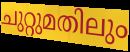
ചുറ്റുമതിലും